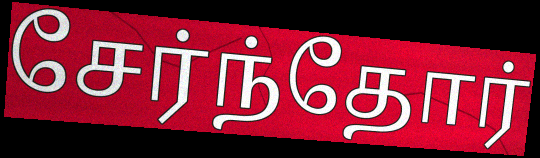
சேர்ந்தோர்